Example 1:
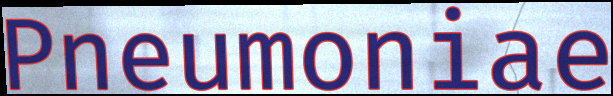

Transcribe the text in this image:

Pneumoniae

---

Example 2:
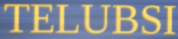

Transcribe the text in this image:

TELUBSI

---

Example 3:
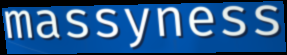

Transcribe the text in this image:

massyness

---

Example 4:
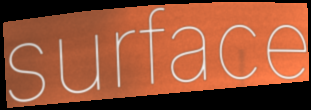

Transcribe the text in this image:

surface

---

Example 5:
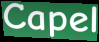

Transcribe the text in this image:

Capel